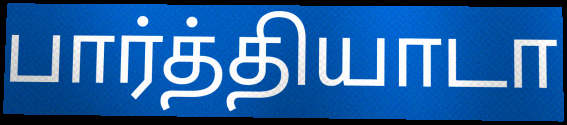
பார்த்தியாடா